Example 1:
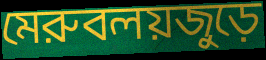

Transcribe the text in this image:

মেরুবলয়জুড়ে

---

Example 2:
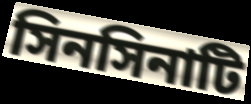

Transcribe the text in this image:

সিনসিনাটি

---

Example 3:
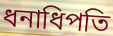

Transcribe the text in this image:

ধনাধিপতি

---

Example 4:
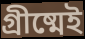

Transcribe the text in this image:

গ্রীষ্মেই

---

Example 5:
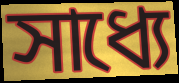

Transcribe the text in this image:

সাধ্যে